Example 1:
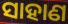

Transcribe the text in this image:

ସାହାଣ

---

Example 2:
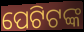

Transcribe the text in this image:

ପେଟିଟଙ୍କ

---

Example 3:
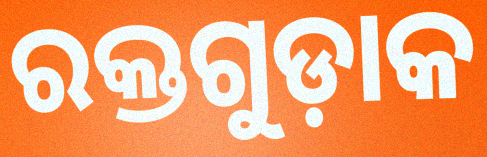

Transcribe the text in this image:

ରକ୍ତଗୁଡ଼ାକ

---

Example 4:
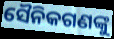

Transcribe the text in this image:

ସୈନିକଗଣଙ୍କୁ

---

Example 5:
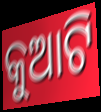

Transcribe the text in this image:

କୁଆଟି